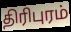
திரிபுரம்